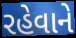
રહેવાને